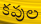
కవుల